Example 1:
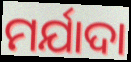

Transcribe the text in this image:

ମର୍ଯାଦା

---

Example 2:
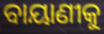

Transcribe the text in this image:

ବାୟାଣୀକୁ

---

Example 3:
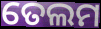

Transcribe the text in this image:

ତେଲମ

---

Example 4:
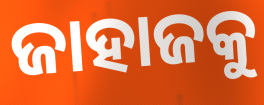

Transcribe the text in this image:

ଜାହାଜକୁ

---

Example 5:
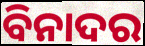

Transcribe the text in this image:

ବିନାଦର